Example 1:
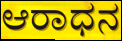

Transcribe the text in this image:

ಆರಾಧನ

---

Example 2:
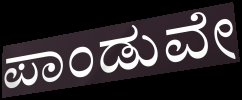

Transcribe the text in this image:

ಪಾಂಡುವೇ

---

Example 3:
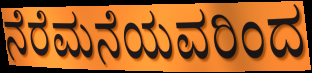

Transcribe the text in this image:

ನೆರೆಮನೆಯವರಿಂದ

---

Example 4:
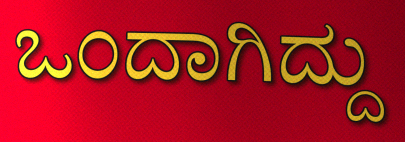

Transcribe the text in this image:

ಒಂದಾಗಿದ್ದು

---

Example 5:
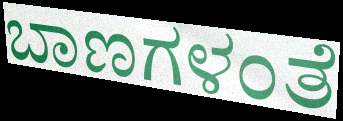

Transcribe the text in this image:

ಬಾಣಗಳಂತೆ